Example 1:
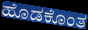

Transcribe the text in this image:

ಹೊಡಕೊಂತ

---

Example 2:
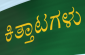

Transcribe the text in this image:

ಕಿತ್ತಾಟಗಳು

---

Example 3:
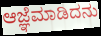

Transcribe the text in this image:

ಆಜ್ಞೆಮಾಡಿದನು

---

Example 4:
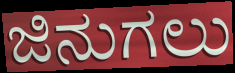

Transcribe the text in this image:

ಜಿನುಗಲು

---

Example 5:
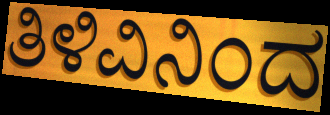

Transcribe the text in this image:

ತಿಳಿವಿನಿಂದ